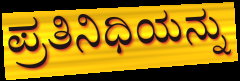
ಪ್ರತಿನಿಧಿಯನ್ನು